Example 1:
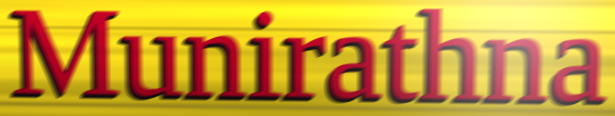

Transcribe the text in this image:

Munirathna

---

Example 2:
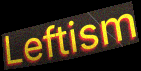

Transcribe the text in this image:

Leftism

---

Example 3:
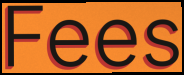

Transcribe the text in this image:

Fees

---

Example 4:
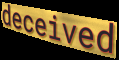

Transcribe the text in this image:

deceived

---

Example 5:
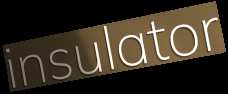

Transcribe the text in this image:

insulator